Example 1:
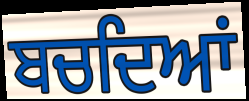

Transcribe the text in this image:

ਬਚਦਿਆਂ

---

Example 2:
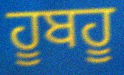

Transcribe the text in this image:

ਹੂਬਹੂ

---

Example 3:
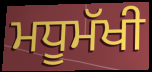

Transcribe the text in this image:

ਮਧੂਮੱਖੀ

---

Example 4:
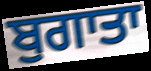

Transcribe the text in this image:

ਬੁਗਾਤਾ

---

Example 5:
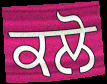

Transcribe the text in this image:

ਕਲੋ